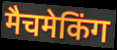
मैचमेकिंग